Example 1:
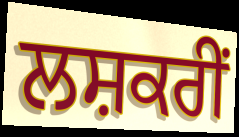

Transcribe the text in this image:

ਲਸ਼ਕਰੀਂ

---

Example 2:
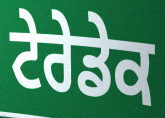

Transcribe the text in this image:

ਟੇਰੇਡੇਕ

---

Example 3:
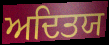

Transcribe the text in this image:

ਅਦਿਤਯ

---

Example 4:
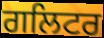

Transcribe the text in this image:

ਗਲਿਟਰ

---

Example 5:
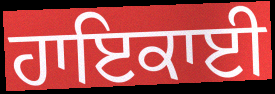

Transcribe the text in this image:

ਹਾਇਕਾਈ